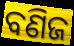
ବଣିଜ